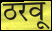
ठरवू